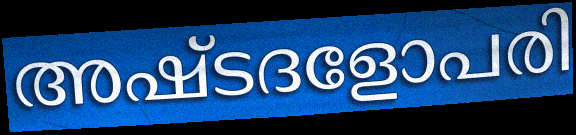
അഷ്ടദളോപരി